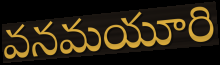
వనమయూరి